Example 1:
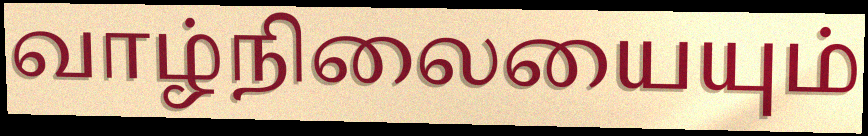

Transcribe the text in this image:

வாழ்நிலையையும்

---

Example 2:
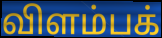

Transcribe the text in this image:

விளம்பக்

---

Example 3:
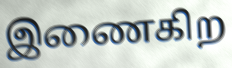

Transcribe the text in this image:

இணைகிற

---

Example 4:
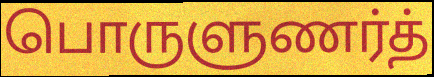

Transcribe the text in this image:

பொருளுணர்த்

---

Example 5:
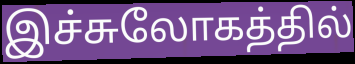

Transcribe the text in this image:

இச்சுலோகத்தில்